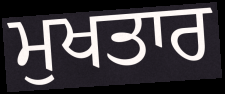
ਮੁਖਤਾਰ